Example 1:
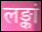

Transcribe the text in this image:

लङ्कां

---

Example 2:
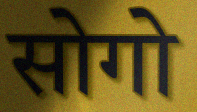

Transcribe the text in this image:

सोगो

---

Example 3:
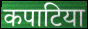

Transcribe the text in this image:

कपाटिया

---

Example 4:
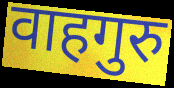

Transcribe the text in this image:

वाहगुरु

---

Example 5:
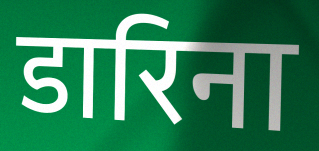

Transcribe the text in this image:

डारिना